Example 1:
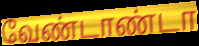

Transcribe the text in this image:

வேண்டாண்டா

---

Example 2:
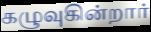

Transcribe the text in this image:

கழுவுகின்றார்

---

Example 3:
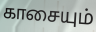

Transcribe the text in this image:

காசையும்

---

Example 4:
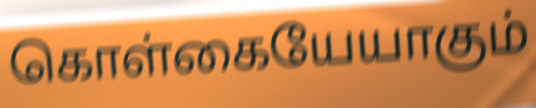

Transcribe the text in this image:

கொள்கையேயாகும்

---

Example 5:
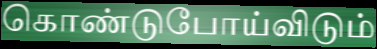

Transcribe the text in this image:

கொண்டுபோய்விடும்